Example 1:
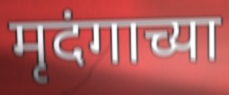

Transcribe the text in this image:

मृदंगाच्या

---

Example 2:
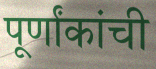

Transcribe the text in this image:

पूर्णांकांची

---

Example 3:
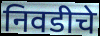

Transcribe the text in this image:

निवडीचे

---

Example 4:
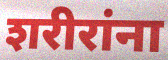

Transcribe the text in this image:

शरीरांना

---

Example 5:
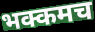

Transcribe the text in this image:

भक्कमच